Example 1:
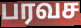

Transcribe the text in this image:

பரவச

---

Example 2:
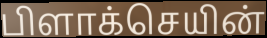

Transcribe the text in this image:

பிளாக்செயின்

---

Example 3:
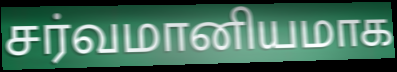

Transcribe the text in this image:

சர்வமானியமாக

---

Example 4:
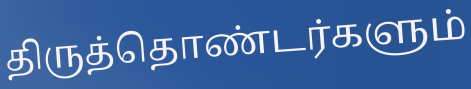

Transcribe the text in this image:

திருத்தொண்டர்களும்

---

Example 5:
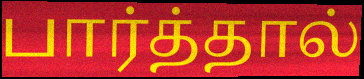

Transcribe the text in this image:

பார்த்தால்